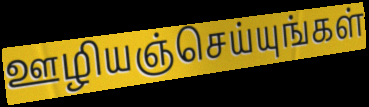
ஊழியஞ்செய்யுங்கள்